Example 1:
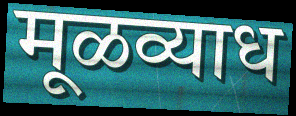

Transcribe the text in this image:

मूळव्याध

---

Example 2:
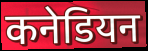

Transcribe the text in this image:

कनेडियन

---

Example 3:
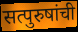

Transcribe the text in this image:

सत्पुरुषांची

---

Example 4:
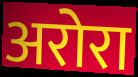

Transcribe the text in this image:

अरोरा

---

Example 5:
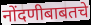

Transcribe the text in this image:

नोंदणीबाबतचे